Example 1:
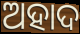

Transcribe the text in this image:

ଅହାଦ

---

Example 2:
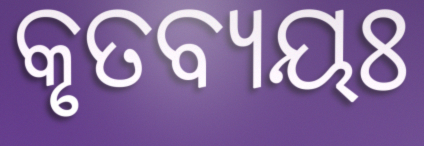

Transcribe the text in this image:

କୃତବ୍ୟୟଃ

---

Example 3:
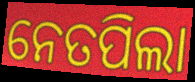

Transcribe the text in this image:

ନେତପିଲା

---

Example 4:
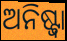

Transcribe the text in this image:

ଅନିଷ୍ଟ୍ୱା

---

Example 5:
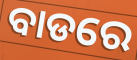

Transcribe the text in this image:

ବାଡରେ